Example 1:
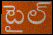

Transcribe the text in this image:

టైల్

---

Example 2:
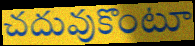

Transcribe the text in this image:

చదువుకొంటూ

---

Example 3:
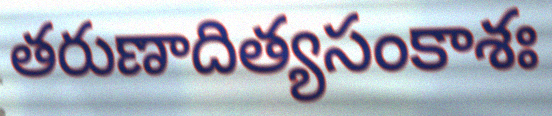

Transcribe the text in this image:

తరుణాదిత్యసంకాశః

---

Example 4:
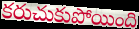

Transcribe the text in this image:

కరుచుకుపోయింది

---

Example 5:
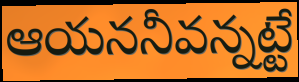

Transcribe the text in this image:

ఆయననీవన్నట్టే